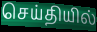
செய்தியில்